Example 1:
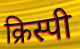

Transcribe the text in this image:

क्रिस्पी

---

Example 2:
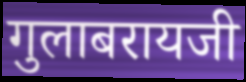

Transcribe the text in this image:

गुलाबरायजी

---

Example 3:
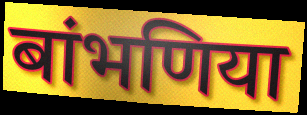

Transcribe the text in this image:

बांभणिया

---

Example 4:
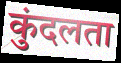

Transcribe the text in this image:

कुंदलता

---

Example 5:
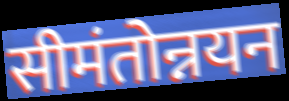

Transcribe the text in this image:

सीमंतोन्नयन